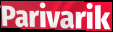
Parivarik